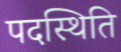
पदस्थिति